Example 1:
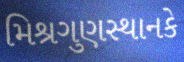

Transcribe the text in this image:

મિશ્રગુણસ્થાનકે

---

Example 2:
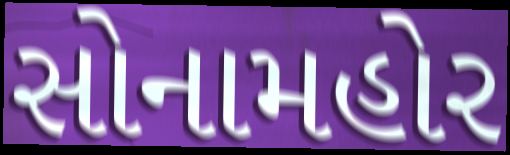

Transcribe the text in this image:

સોનામહોર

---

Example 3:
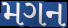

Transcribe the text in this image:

મગન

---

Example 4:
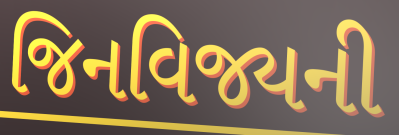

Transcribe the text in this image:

જિનવિજ્યની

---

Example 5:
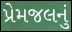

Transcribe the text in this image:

પ્રેમજલનું